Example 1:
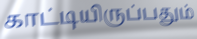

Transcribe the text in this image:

காட்டியிருப்பதும்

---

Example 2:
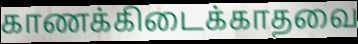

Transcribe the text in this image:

காணக்கிடைக்காதவை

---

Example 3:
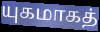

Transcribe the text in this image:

யுகமாகத்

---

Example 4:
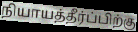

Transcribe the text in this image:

நியாயத்தீர்ப்பிற்கு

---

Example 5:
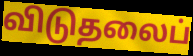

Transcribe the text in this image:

விடுதலைப்